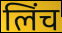
लिंच